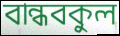
বান্ধবকুল